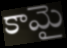
కామై